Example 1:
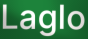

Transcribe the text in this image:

Laglo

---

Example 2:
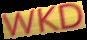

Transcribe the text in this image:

WKD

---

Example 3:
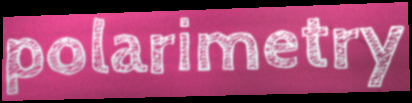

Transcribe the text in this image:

polarimetry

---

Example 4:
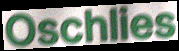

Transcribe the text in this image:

Oschlies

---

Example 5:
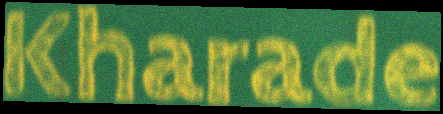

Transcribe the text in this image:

Kharade